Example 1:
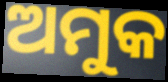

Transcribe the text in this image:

ଅମୁକ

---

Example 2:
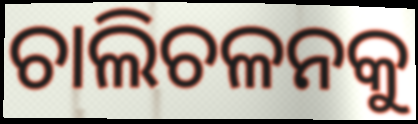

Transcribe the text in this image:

ଚାଲିଚଳନକୁ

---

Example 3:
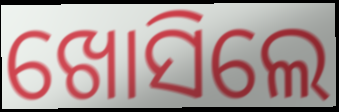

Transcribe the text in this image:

ଖୋସିଲେ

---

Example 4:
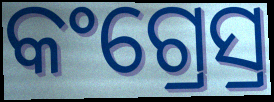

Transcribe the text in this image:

କଂଗ୍ରେସ୍ର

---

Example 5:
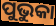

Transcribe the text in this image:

ପୁଭୁକା